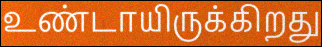
உண்டாயிருக்கிறது